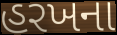
હરખના